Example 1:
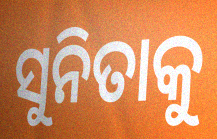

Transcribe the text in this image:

ସୁନିତାକୁ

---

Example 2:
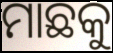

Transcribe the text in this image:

ମାଛକୁ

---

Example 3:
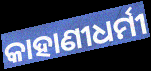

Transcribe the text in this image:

କାହାଣୀଧର୍ମୀ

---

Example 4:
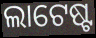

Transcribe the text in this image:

ଲାଟେଷ୍ଟ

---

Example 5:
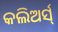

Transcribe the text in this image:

କଲିଅର୍ସ୍